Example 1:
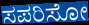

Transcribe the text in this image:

ಸಪರಿಸೋ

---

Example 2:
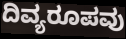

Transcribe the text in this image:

ದಿವ್ಯರೂಪವು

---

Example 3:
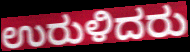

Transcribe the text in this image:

ಉರುಳಿದರು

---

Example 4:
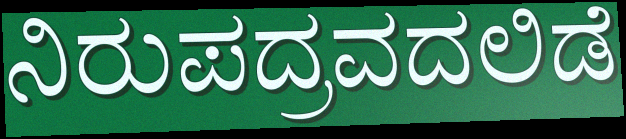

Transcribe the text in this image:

ನಿರುಪದ್ರವದಲಿಡೆ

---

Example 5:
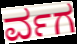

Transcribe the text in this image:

ರ್ವಗ